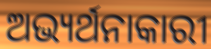
ଅଭ୍ୟର୍ଥନାକାରୀ